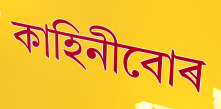
কাহিনীবোৰ